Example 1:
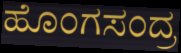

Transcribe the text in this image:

ಹೊಂಗಸಂದ್ರ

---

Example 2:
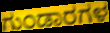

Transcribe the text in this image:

ಗುಂಡಾರಗಳ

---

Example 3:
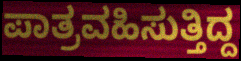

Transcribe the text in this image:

ಪಾತ್ರವಹಿಸುತ್ತಿದ್ದ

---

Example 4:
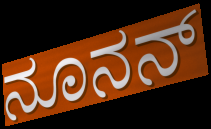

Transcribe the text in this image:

ನೂನನ್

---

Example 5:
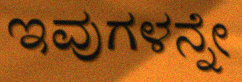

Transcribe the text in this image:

ಇವುಗಳನ್ನೇ